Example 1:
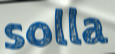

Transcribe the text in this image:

solla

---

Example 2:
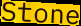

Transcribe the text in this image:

Stone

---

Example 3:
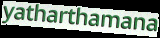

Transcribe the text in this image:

yatharthamana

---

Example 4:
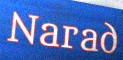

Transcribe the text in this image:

Narad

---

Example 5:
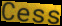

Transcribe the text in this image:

Cess